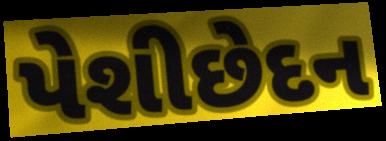
પેશીછેદન